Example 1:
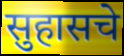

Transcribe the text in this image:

सुहासचे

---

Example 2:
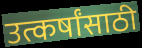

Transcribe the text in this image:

उत्कर्षांसाठी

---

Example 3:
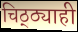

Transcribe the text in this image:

चिठ्ठ्याही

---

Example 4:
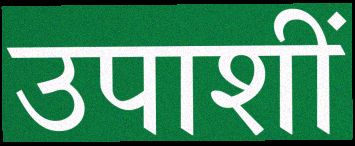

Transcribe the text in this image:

उपाशीं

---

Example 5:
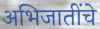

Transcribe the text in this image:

अभिजातींचे